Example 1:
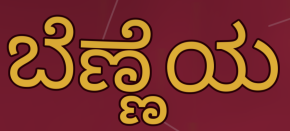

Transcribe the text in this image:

ಬೆಣ್ಣೆಯ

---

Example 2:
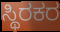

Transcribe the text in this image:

ಸ್ಥಿರಕರ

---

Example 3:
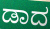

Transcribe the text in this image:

ಡಾದ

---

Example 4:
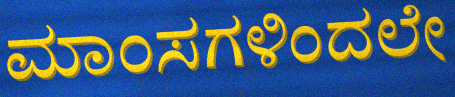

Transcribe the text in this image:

ಮಾಂಸಗಳಿಂದಲೇ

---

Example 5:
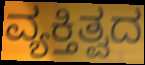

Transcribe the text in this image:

ವ್ಯಕ್ತಿತ್ವದ